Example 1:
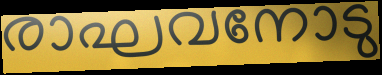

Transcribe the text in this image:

രാഘവനോടു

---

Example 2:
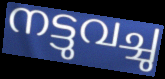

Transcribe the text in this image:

നട്ടുവച്ചു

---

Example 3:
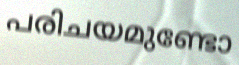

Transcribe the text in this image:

പരിചയമുണ്ടോ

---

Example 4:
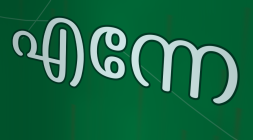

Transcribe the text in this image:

എന്നേ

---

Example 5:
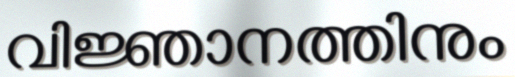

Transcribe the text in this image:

വിജ്ഞാനത്തിനും